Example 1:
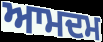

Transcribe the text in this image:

ਆਮਦਮ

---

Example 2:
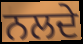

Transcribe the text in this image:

ਨਲਦੇ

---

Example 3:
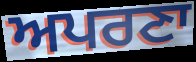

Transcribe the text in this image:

ਅਪਰਣਾ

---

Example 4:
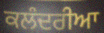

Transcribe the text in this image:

ਕਲੰਦਰੀਆ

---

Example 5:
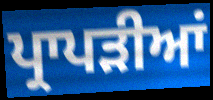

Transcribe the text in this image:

ਪ੍ਰਾਪੜੀਆਂ